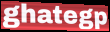
ghategp